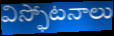
విస్ఫోటనాలు